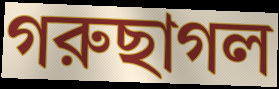
গরুছাগল